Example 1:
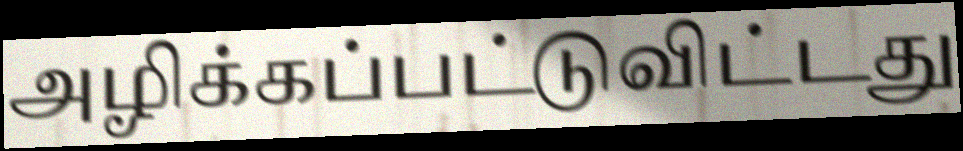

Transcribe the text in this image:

அழிக்கப்பட்டுவிட்டது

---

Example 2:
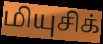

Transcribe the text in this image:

மியுசிக்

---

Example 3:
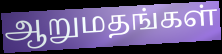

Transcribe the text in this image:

ஆறுமதங்கள்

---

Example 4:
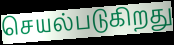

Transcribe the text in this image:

செயல்படுகிறது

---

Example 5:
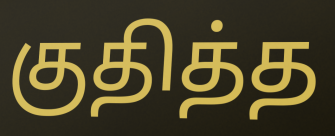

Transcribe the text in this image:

குதித்த